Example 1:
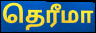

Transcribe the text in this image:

தெரீமா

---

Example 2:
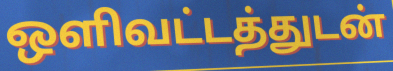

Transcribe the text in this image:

ஒளிவட்டத்துடன்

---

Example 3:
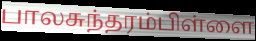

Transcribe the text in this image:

பாலசுந்தரம்பிள்ளை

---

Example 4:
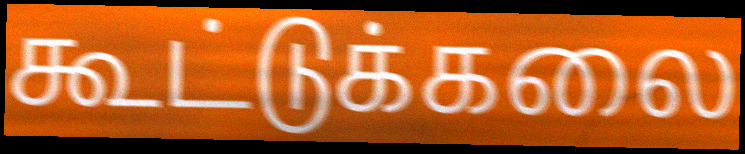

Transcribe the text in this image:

கூட்டுக்கலை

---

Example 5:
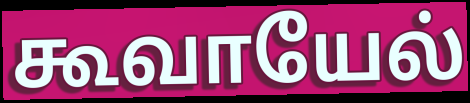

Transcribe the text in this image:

கூவாயேல்